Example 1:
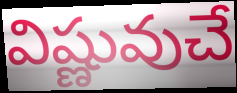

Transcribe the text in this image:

విష్ణువుచే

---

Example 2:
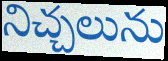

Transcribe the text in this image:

నిచ్చలును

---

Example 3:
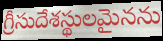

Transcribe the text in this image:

గ్రీసుదేశస్థులమైనను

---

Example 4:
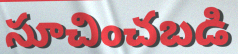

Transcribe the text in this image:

సూచించబడి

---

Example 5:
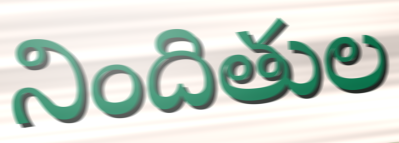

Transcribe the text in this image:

నిందితుల